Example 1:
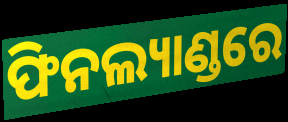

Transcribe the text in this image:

ଫିନଲ୍ୟାଣ୍ଡରେ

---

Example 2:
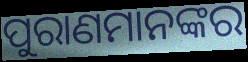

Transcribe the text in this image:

ପୁରାଣମାନଙ୍କର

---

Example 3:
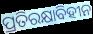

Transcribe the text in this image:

ପ୍ରତିରକ୍ଷାବିହୀନ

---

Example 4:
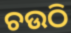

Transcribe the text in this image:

ଚଉଠି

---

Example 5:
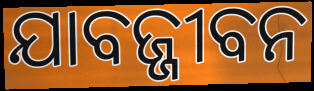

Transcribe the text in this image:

ଯାବଜ୍ଜୀବନ